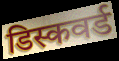
डिस्कवर्ड